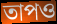
তাপও